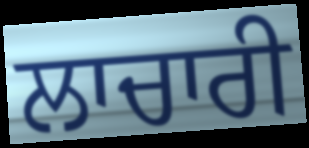
ਲਾਚਾਰੀ